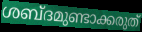
ശബ്ദമുണ്ടാക്കരുത്